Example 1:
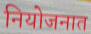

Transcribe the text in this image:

नियोजनात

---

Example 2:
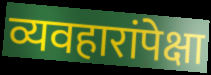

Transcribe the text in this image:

व्यवहारांपेक्षा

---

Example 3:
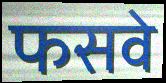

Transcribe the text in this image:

फसवे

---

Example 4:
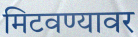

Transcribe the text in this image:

मिटवण्यावर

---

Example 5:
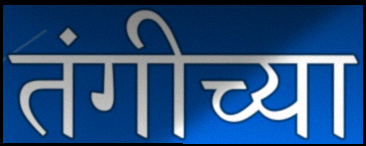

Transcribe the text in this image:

तंगीच्या